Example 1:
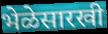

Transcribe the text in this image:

भेळेसारखी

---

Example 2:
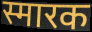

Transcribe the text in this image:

स्मारक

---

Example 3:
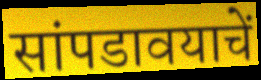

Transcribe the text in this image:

सांपडावयाचें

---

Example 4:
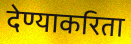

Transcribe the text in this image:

देण्याकरिता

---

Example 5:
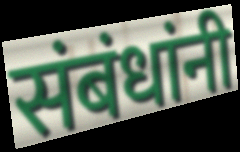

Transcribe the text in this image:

संबंधांनी